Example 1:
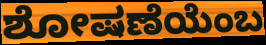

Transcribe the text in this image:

ಶೋಷಣೆಯೆಂಬ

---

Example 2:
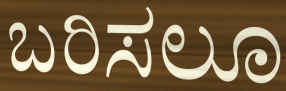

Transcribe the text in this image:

ಬರಿಸಲೂ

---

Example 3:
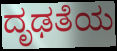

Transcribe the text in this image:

ದೃಢತೆಯ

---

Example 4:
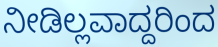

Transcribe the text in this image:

ನೀಡಿಲ್ಲವಾದ್ದರಿಂದ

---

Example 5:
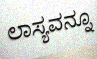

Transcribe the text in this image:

ಲಾಸ್ಯವನ್ನೂ